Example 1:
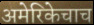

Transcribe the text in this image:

अमेरिकेचाच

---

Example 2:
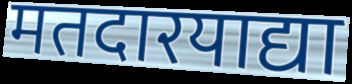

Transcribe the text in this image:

मतदारयाद्या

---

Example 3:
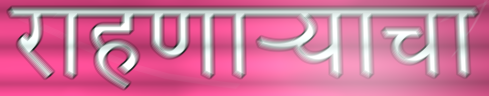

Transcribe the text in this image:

राहणाऱ्याचा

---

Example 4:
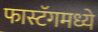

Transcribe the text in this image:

फास्टॅगमध्ये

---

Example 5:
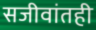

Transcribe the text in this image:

सजीवांतही